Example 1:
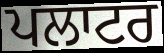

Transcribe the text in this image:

ਪਲਾਟਰ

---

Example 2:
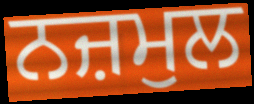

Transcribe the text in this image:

ਨਜ਼ਮੁਲ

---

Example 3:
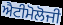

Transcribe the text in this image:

ਐਟੀਮੋਲੋਜੀ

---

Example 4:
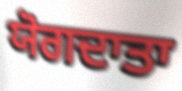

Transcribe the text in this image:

ਯੋਗਦਾਤਾ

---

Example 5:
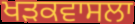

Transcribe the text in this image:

ਖੜਕਵਾਸਲਾ